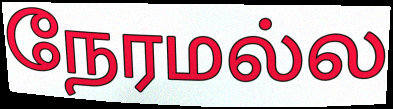
நேரமல்ல